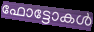
ഫോട്ടോകൾ